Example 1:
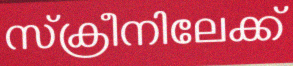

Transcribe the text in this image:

സ്‌ക്രീനിലേക്ക്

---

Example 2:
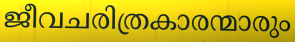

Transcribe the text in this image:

ജീവചരിത്രകാരന്മാരും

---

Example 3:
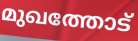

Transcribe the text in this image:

മുഖത്തോട്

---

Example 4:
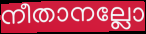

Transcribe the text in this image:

നീതാനല്ലോ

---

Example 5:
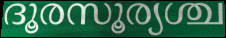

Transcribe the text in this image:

ദൂരസൂര്യശ്ച